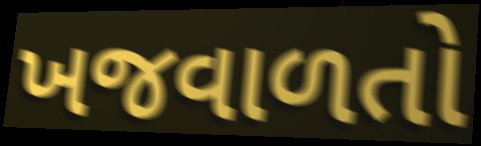
ખજવાળતો